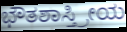
ಭೌತಶಾಸ್ತ್ರೀಯ